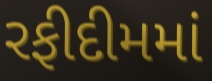
રફીદીમમાં